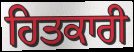
ਹਿਤਕਾਰੀ